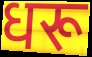
धरू